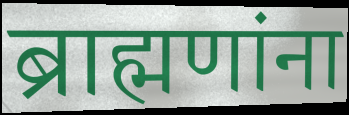
ब्राह्मणांना